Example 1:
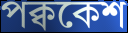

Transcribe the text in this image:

পক্বকেশ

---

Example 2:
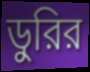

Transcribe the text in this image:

ডুরির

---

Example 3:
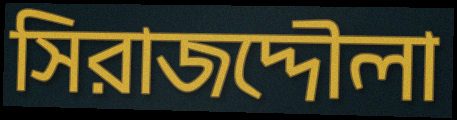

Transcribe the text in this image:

সিরাজদ্দৌলা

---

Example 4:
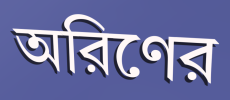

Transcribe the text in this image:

অরিণের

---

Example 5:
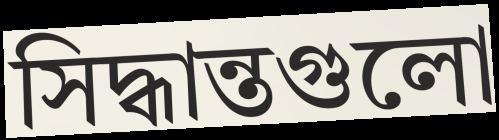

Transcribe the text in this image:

সিদ্ধান্তগুলো